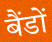
बैंडों